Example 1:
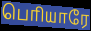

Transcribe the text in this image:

பெரியாரே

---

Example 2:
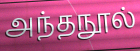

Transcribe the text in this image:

அந்தநூல்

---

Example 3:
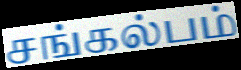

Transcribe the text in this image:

சங்கல்பம்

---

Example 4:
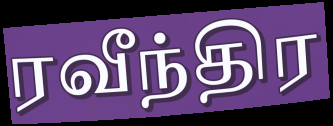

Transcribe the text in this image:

ரவீந்திர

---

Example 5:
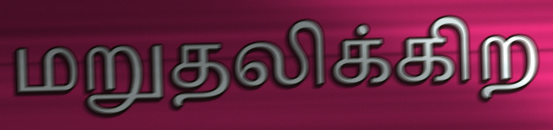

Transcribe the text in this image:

மறுதலிக்கிற